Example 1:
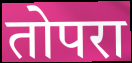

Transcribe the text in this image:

तोपरा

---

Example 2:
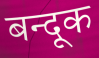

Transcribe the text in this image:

बन्दूक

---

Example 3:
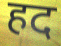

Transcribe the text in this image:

हद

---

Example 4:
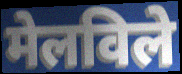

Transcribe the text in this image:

मेलविले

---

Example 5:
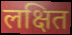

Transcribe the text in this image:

लक्षित